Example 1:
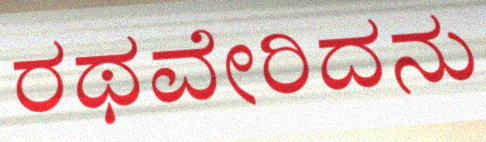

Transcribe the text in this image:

ರಥವೇರಿದನು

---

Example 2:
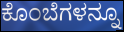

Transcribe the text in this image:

ಕೊಂಬೆಗಳನ್ನೂ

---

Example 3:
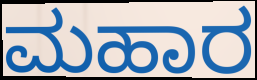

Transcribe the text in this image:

ಮಹಾರ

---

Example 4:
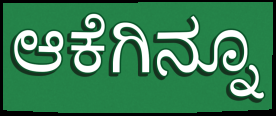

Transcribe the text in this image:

ಆಕೆಗಿನ್ನೂ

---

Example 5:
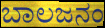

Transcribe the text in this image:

ಬಾಲಜನಂ